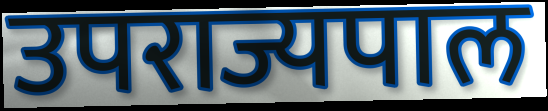
उपराज्यपाल